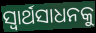
ସ୍ଵାର୍ଥସାଧନକୁ